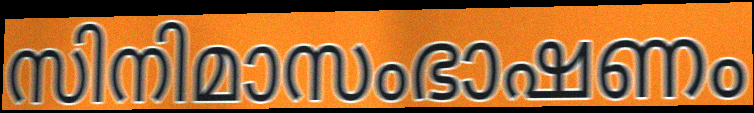
സിനിമാസംഭാഷണം